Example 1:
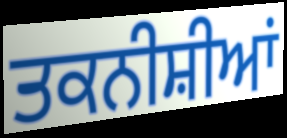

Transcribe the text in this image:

ਤਕਨੀਸ਼ੀਆਂ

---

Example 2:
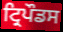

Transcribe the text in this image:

ਟ੍ਰਿਪੌਡਸ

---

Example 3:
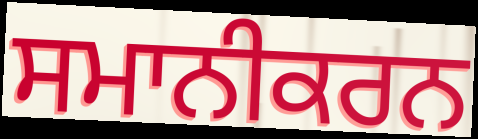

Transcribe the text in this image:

ਸਮਾਨੀਕਰਨ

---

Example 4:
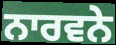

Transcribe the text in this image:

ਨਾਰਵਨੇ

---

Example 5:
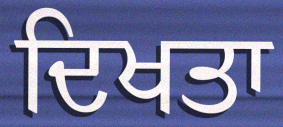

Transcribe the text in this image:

ਦਿਖਤਾ